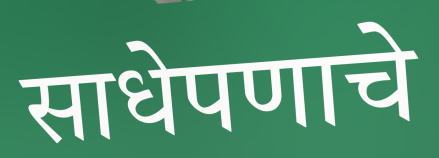
साधेपणाचे